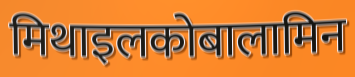
मिथाइलकोबालामिन